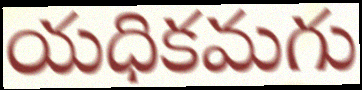
యధికమగు